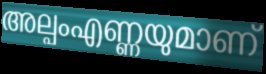
അല്പംഎണ്ണയുമാണ്